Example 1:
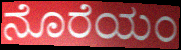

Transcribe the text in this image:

ನೊರೆಯಂ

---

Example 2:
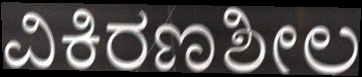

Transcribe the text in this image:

ವಿಕಿರಣಶೀಲ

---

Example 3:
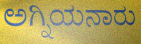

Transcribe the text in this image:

ಅಗ್ನಿಯನಾರು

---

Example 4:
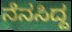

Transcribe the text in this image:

ನೆನಸಿದ್ದ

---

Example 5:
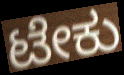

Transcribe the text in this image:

ಟೇಕು